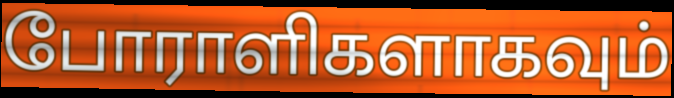
போராளிகளாகவும்